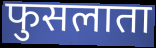
फुसलाता